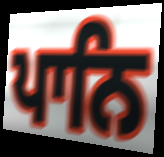
ਪਾਨਿ